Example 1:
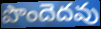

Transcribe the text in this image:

పొందెదవు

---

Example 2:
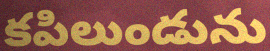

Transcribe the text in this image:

కపిలుండును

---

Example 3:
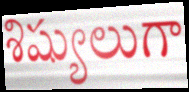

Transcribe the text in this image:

శిష్యులుగా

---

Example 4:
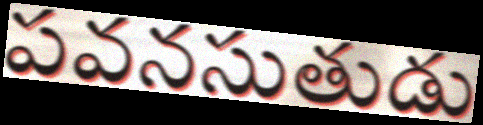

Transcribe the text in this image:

పవనసుతుడు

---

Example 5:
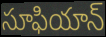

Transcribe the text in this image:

సూఫియాన్